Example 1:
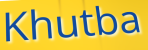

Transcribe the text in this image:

Khutba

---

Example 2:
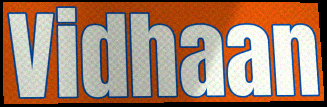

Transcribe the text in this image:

Vidhaan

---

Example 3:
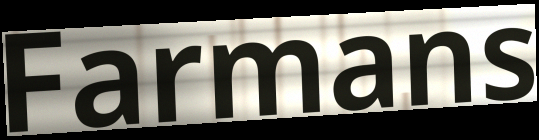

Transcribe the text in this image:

Farmans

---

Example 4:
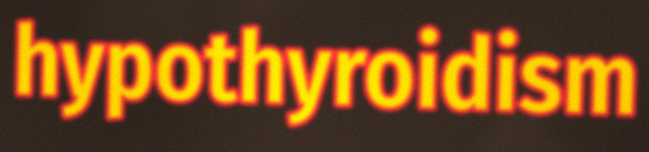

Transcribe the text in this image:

hypothyroidism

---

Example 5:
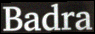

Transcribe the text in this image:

Badra